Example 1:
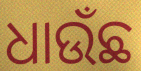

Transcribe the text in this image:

ଧାଉଁଛ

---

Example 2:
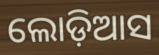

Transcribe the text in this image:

ଲୋଡ଼ିଆସ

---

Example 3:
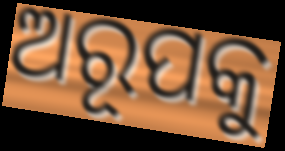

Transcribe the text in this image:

ଅରୂପକୁ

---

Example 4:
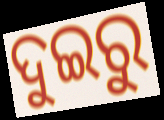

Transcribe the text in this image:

ଦୁଇରୁ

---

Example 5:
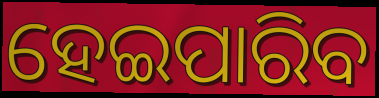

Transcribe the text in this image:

ହେଇପାରିବ